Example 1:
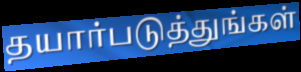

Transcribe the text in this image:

தயார்படுத்துங்கள்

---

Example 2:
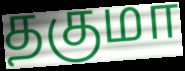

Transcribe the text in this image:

தகுமா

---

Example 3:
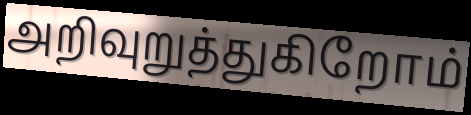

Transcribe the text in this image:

அறிவுறுத்துகிறோம்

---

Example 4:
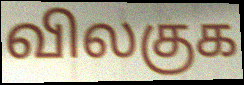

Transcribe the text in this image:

விலகுக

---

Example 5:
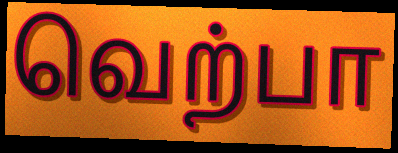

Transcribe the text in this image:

வெற்பா